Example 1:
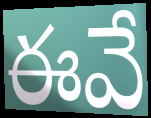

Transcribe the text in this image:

ఈవే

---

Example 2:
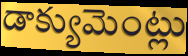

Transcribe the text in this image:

డాక్యుమెంట్లు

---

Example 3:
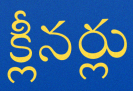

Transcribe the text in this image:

క్లీనర్లు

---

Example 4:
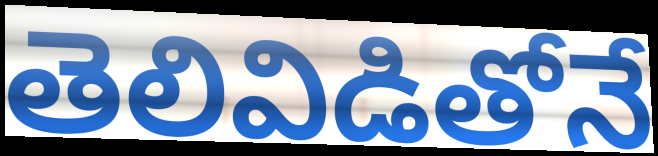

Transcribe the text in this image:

తెలివిడితోనే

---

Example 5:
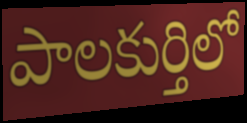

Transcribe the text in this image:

పాలకుర్తిలో